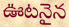
ఊటనైన